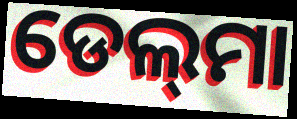
ଡେଲ୍‍ମା